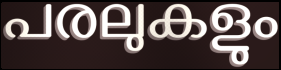
പരലുകളും